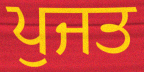
ਪੁਜਤ